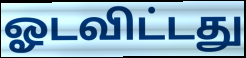
ஓடவிட்டது